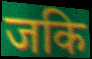
जकि